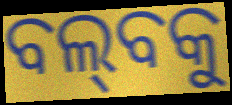
ବଲ୍‌ବକୁ